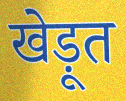
खेड़ूत